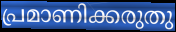
പ്രമാണിക്കരുതു